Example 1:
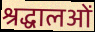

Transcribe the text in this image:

श्रद्धालओं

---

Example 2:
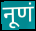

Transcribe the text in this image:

नूणं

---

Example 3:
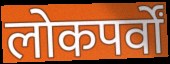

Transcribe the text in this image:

लोकपर्वों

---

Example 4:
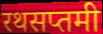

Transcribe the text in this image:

रथसप्तमी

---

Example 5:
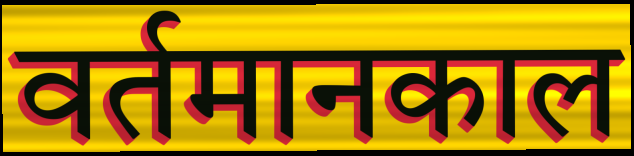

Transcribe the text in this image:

वर्तमानकाल